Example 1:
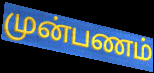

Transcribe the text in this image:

முன்பணம்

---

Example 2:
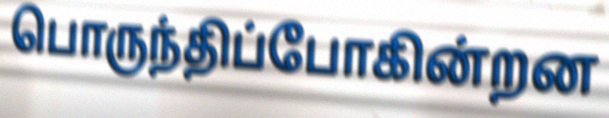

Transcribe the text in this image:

பொருந்திப்போகின்றன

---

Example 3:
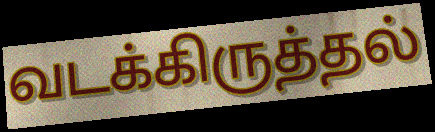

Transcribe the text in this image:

வடக்கிருத்தல்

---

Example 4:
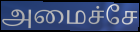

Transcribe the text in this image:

அமைச்சே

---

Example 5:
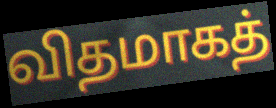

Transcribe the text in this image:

விதமாகத்